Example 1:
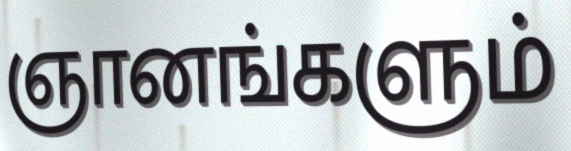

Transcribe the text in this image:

ஞானங்களும்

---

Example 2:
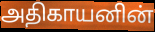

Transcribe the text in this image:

அதிகாயனின்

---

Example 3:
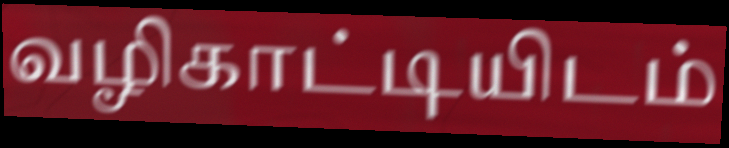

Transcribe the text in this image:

வழிகாட்டியிடம்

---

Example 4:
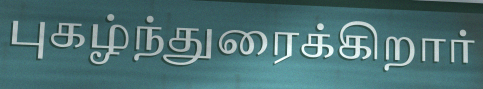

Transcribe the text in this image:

புகழ்ந்துரைக்கிறார்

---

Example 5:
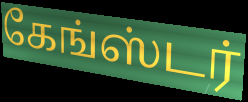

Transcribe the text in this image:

கேங்ஸ்டர்